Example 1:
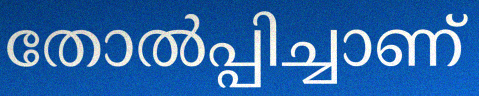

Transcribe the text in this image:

തോൽപ്പിച്ചാണ്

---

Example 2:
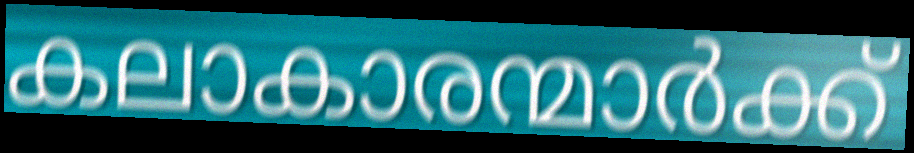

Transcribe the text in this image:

കലാകാരന്മാർക്ക്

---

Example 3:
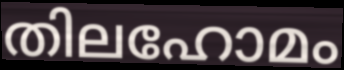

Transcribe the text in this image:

തിലഹോമം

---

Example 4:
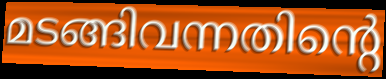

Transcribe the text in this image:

മടങ്ങിവന്നതിന്റെ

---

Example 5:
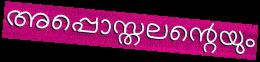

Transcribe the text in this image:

അപ്പൊസ്തലന്റെയും